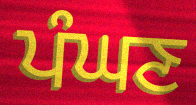
ਪੰਘਣ